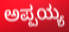
ಅಪ್ಪಯ್ಯ